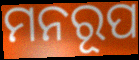
ମନରୂପ